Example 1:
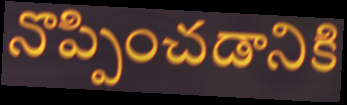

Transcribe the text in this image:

నొప్పించడానికి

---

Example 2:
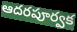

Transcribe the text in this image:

ఆదరపూర్వక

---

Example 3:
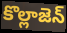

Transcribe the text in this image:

కొల్లాజెన్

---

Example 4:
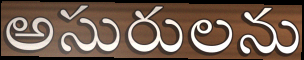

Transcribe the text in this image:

అసురులను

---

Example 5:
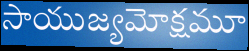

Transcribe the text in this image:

సాయుజ్యమోక్షమూ